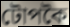
টোপকৈ